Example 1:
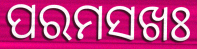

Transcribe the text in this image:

ପରମସଖଃ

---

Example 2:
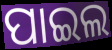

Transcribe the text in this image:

ପାଇଲ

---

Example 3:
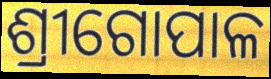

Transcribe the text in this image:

ଶ୍ରୀଗୋପାଳ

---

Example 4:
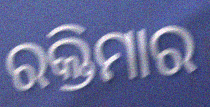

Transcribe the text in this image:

ରକ୍ତିମାର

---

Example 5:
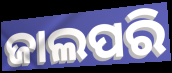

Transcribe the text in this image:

ଜାଲପରି